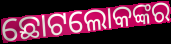
ଛୋଟଲୋକଙ୍କର